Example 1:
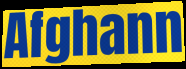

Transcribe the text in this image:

Afghann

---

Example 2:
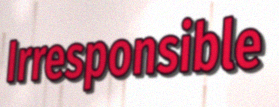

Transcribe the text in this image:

Irresponsible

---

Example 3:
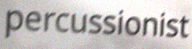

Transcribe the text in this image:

percussionist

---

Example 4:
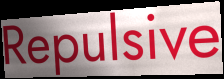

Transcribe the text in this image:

Repulsive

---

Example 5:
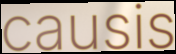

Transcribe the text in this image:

causis